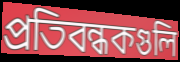
প্রতিবন্ধকগুলি